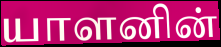
யாளனின்